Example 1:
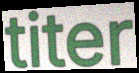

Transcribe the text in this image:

titer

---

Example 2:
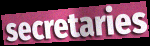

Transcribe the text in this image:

secretaries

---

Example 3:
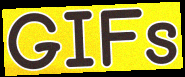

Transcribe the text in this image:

GIFs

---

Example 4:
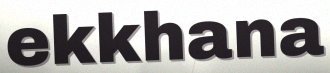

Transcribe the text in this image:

ekkhana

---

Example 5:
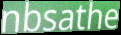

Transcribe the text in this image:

nbsathe